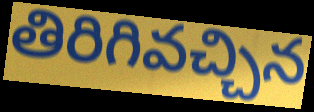
తిరిగివచ్చిన